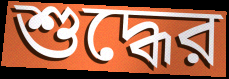
শুদ্ধের